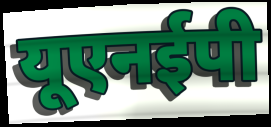
यूएनईपी